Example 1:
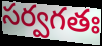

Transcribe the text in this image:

సర్వగతః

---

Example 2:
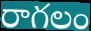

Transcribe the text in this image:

రాగలం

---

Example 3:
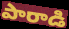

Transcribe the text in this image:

పారాడి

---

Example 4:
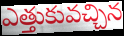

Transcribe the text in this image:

ఎత్తుకువచ్చిన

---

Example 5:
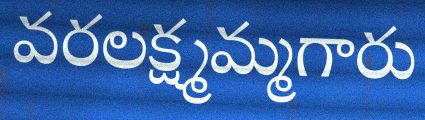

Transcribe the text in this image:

వరలక్ష్మమ్మగారు